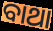
ବାଥା